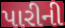
પારીની